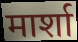
मार्शा